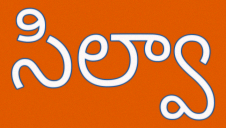
సిల్వా